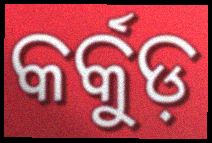
କର୍କୁଡ଼